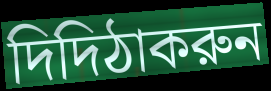
দিদিঠাকরুন